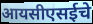
आयसीएसईचे